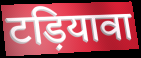
टड़ियावा